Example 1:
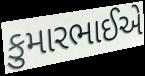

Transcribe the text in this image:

કુમારભાઈએ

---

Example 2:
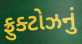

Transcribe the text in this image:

ફ્રુક્ટોઝનું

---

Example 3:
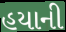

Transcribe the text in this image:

હયાની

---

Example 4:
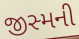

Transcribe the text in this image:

જીસ્મની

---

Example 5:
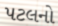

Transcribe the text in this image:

પટલનો